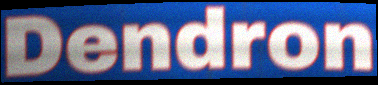
Dendron